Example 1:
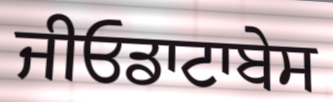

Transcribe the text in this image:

ਜੀਓਡਾਟਾਬੇਸ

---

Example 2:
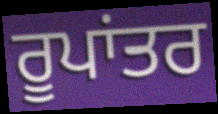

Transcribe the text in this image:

ਰੂਪਾਂਤਰ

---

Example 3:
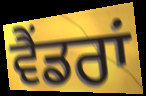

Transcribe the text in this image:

ਵੈਂਡਰਾਂ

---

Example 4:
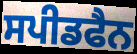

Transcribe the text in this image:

ਸਪੀਡਫੈਨ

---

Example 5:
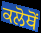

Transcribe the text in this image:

ਕਲੋਥੋਂ